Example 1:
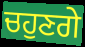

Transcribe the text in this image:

ਚਹੁਣਗੇ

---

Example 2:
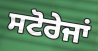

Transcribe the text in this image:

ਸਟੋਰੇਜਾਂ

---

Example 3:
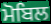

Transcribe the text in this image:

ਮੋਬਿਲ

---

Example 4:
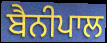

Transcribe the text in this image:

ਬੈਨੀਪਾਲ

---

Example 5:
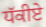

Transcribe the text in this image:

ਧੱਕੀਏ